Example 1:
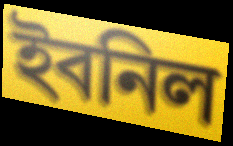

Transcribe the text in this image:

ইবনিল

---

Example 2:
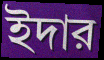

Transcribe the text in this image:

ইদার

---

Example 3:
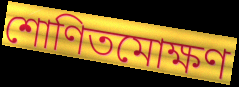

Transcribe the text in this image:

শোণিতমোক্ষণ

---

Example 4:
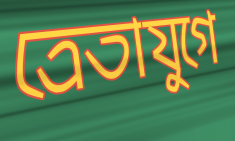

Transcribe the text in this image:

ত্রেতাযুগে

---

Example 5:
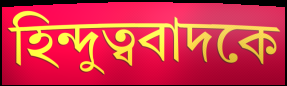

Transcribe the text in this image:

হিন্দুত্ববাদকে